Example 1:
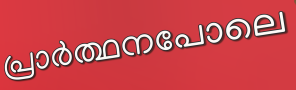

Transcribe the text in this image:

പ്രാർത്ഥനപോലെ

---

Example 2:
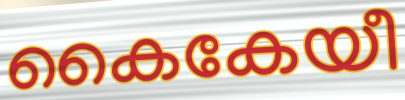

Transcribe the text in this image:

കൈകേയീ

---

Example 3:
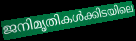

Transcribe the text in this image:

ജനിമൃതികൾക്കിടയിലെ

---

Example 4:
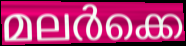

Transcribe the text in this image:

മലർക്കെ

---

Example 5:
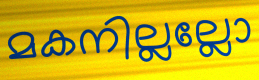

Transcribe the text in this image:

മകനില്ലല്ലോ